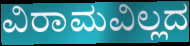
ವಿರಾಮವಿಲ್ಲದ